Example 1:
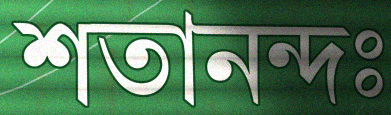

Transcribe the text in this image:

শতানন্দঃ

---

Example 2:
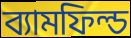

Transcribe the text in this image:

ব্যামফিল্ড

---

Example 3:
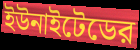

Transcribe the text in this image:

ইউনাইটেডের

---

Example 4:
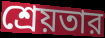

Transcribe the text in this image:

শ্রেয়তার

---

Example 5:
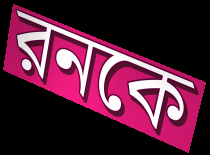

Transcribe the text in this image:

রনকে